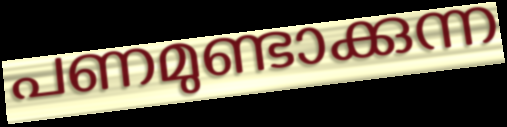
പണമുണ്ടാക്കുന്ന